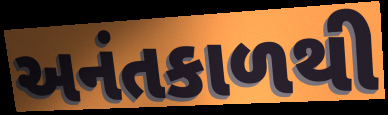
અનંતકાળથી